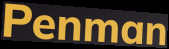
Penman